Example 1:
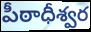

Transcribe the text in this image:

పీఠాధీశ్వర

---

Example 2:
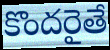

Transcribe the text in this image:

కొందరైతే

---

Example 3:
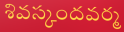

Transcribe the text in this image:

శివస్కందవర్మ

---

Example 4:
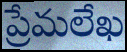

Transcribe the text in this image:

ప్రేమలేఖ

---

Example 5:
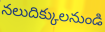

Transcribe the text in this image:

నలుదిక్కులనుండి